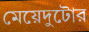
মেয়েদুটোর